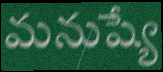
మనుష్యే